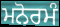
ਮਨੋਰਮੰ